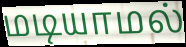
மடியாமல்